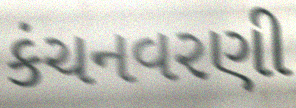
કંચનવરણી